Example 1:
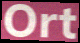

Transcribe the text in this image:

Ort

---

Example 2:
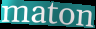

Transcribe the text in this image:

maton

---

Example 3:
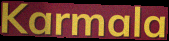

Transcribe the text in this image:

Karmala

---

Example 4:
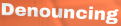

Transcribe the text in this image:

Denouncing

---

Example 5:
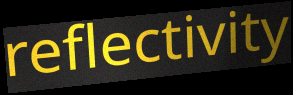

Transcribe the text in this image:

reflectivity